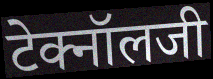
टेक्नॉलजी